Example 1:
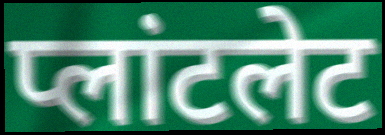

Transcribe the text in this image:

प्लांटलेट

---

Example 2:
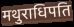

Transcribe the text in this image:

मथुराधिपति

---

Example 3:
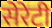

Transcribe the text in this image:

सेरेटी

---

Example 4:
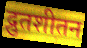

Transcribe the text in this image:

द्रुतशीतन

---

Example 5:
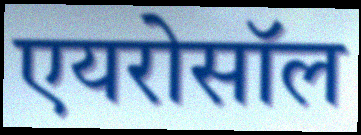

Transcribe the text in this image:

एयरोसॉल